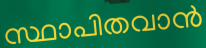
സ്ഥാപിതവാൻ